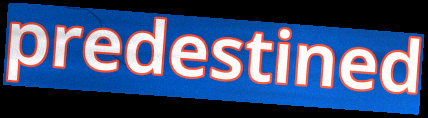
predestined